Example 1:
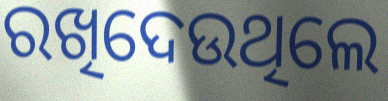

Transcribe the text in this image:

ରଖିଦେଉଥିଲେ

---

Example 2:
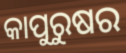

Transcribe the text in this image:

କାପୁରୁଷର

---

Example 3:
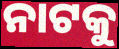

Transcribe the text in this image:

ନାଟକୁ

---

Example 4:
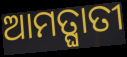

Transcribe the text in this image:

ଆମତ୍ଘାତୀ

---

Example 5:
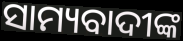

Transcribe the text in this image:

ସାମ୍ୟବାଦୀଙ୍କ